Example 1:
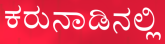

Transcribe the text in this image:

ಕರುನಾಡಿನಲ್ಲಿ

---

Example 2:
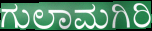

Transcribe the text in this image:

ಗುಲಾಮಗಿರಿ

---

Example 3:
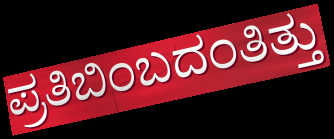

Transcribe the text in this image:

ಪ್ರತಿಬಿಂಬದಂತಿತ್ತು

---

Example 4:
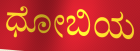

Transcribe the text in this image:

ಧೋಬಿಯ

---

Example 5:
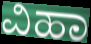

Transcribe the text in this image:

ವಿಹಾ